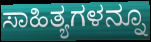
ಸಾಹಿತ್ಯಗಳನ್ನೂ